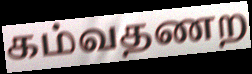
கம்வதணற